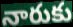
నారుకు